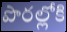
పొరల్లోకి